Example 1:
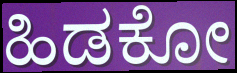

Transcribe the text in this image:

ಹಿಡಕೋ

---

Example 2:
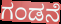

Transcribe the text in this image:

ಗಂಡನೆ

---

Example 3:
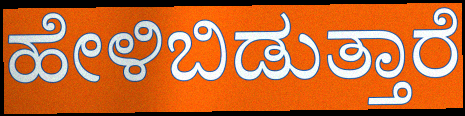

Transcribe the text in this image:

ಹೇಳಿಬಿಡುತ್ತಾರೆ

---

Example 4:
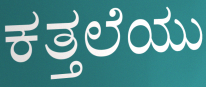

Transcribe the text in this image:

ಕತ್ತಲೆಯು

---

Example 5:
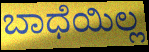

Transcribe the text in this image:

ಬಾಧೆಯಿಲ್ಲ